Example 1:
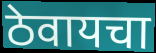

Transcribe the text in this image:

ठेवायचा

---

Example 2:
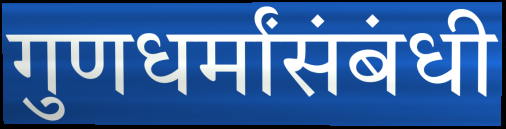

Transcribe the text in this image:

गुणधर्मांसंबंधी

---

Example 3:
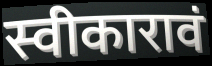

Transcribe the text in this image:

स्वीकारावं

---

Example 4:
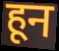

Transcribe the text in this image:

हून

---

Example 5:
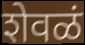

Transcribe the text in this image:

शेवळं